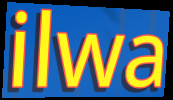
ilwa